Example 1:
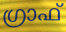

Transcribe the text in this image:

ഗ്രാഫ്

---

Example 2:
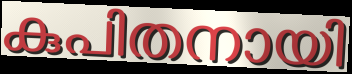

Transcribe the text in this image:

കുപിതനായി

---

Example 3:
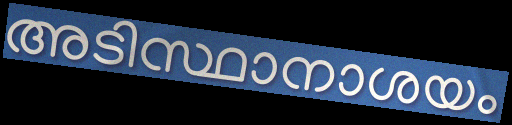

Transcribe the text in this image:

അടിസ്ഥാനാശയം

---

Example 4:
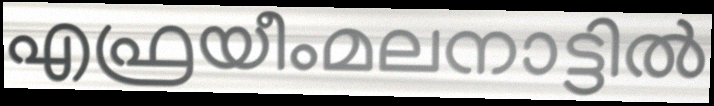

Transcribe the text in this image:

എഫ്രയീംമലനാട്ടിൽ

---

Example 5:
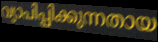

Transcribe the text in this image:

വ്യാപിപ്പിക്കുന്നതായ